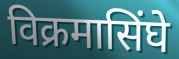
विक्रमासिंघे